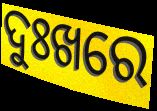
ଦୁଃଖରେ